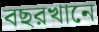
বছরখানে